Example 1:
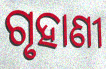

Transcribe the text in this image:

ଗୃହାଣୀ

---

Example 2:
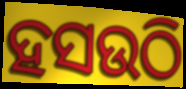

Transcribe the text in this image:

ହସଉଠି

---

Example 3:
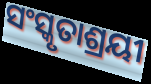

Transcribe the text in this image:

ସଂସ୍କୃତାଶ୍ରୟୀ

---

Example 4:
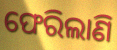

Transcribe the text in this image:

ଫେରିଲାଣି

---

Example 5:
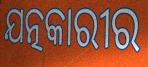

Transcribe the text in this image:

ଯତ୍ନକାରୀର